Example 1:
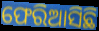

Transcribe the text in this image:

ଫେରିଆସିଛି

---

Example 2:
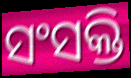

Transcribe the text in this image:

ସଂସକ୍ତି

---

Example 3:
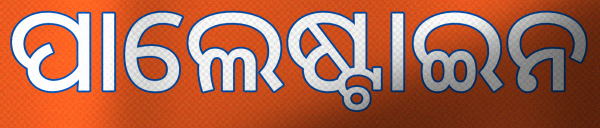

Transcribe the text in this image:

ପାଲେଷ୍ଟାଇନ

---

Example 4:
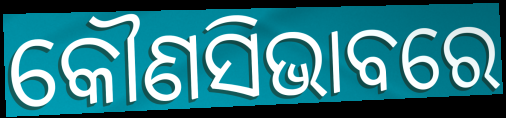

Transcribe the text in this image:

କୌଣସିଭାବରେ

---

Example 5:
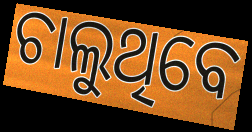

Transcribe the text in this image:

ଚାଲୁଥିବେ